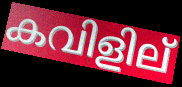
കവിളില്